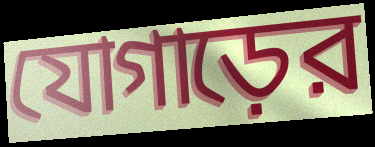
যোগাড়ের